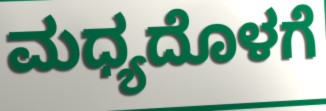
ಮಧ್ಯದೊಳಗೆ